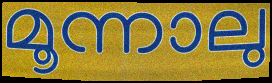
മൂന്നാലു